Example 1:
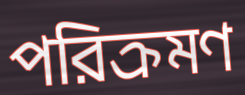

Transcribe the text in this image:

পরিক্রমণ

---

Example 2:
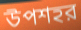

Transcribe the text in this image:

উপশহর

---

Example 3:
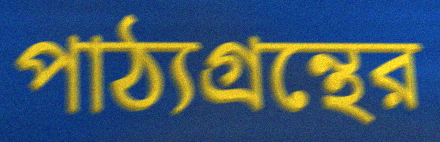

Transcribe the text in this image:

পাঠ্যগ্রন্থের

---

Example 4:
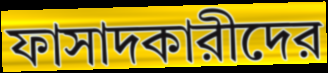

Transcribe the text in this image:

ফাসাদকারীদের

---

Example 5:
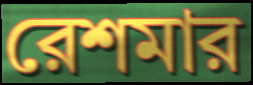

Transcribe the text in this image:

রেশমার